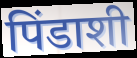
पिंडाशी